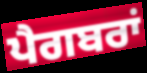
ਪੈਗਬਰਾਂ